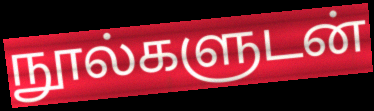
நூல்களுடன்